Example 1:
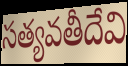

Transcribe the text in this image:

సత్యవతీదేవి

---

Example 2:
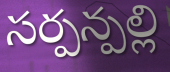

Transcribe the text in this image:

సర్పన్పల్లి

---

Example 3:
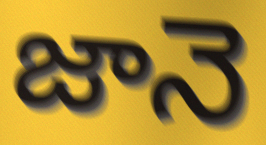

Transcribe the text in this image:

జానె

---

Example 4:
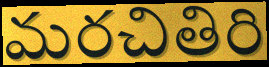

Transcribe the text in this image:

మరచితిరి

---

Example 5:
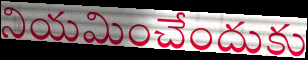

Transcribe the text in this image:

నియమించేందుకు